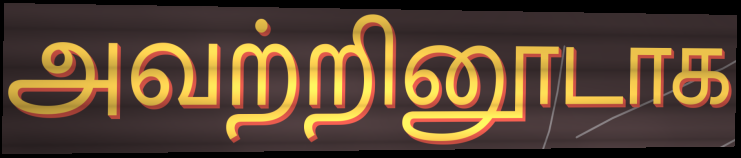
அவற்றினூடாக